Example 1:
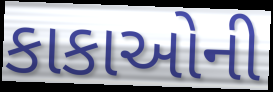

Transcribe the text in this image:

કાકાઓની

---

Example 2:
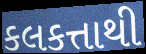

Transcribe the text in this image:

કલકત્તાથી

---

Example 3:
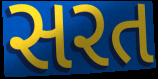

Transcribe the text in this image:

સરત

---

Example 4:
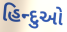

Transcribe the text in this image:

હિન્દુઓ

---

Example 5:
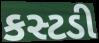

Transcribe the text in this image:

કસ્ટડી